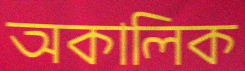
অকালিক